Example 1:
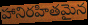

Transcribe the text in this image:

హానిరహితమైన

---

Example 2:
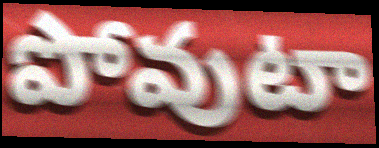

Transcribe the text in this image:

పోవుటా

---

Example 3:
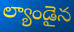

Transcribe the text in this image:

ల్యాండైన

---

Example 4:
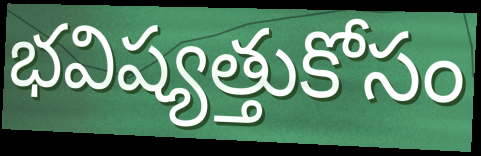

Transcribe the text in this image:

భవిష్యత్తుకోసం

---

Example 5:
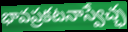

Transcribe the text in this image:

భావప్రకటనాస్వేచ్ఛ